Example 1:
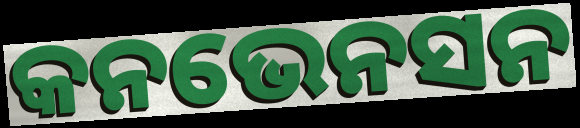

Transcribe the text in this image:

କନଭେନସନ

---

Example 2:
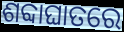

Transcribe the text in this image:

ଶବ୍ଦାଘାତରେ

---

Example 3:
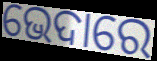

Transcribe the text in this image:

ଭେଦାରେ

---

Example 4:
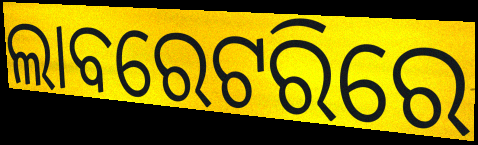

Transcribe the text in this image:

ଲାବରେଟରିରେ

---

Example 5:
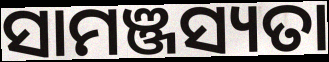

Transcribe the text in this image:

ସାମଞ୍ଜସ୍ୟତା